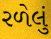
રળેલું